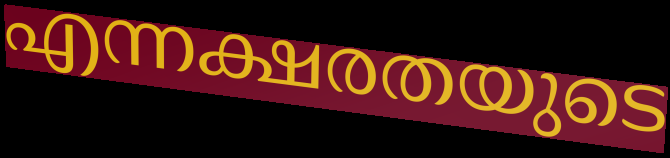
എന്നക്ഷരതയുടെ